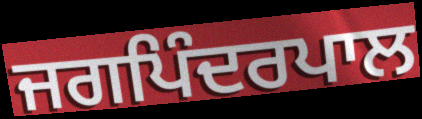
ਜਗਪਿੰਦਰਪਾਲ